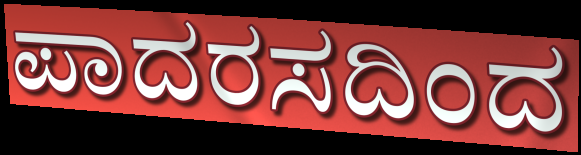
ಪಾದರಸದಿಂದ